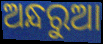
ଅନ୍ଧରୁଆ